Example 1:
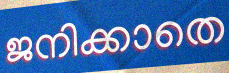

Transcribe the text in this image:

ജനിക്കാതെ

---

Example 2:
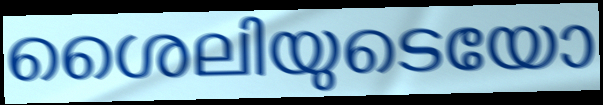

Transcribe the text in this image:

ശൈലിയുടെയോ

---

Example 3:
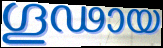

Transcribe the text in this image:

ഗൂഢായ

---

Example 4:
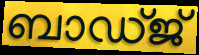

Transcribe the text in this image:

ബാഡ്ജ്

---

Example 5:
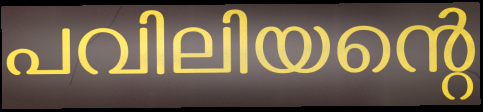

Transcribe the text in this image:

പവിലിയന്റെ